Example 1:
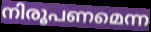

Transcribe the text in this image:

നിരൂപണമെന്ന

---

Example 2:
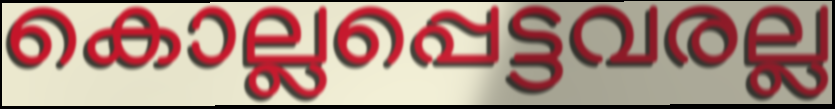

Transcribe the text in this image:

കൊല്ലപ്പെട്ടവരല്ല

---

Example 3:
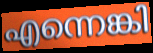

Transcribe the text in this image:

എന്നെങ്കി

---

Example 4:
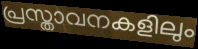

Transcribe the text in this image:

പ്രസ്താവനകളിലും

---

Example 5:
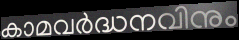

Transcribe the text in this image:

കാമവർദ്ധനവിനും